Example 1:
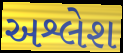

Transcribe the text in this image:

અશ્લેશ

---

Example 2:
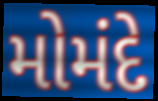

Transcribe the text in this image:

મોમંદે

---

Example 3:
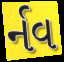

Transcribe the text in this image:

ર્નવ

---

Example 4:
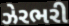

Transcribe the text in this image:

ઝેરભરી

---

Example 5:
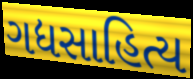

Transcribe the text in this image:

ગદ્યસાહિત્ય